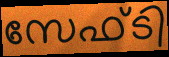
സേഫ്ടി